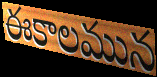
ఈకాలమున